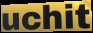
uchit